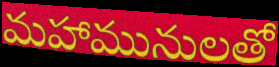
మహామునులతో